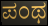
ಪಂಥ